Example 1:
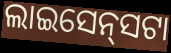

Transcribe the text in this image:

ଲାଇସେନ୍‍ସଟା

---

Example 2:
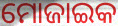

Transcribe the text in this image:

ମୋଜାଇକ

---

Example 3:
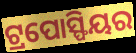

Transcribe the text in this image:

ଟ୍ରପୋସ୍ଫିୟର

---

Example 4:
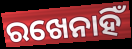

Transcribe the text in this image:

ରଖେନାହିଁ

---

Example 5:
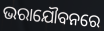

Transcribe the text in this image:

ଭରାଯୌବନରେ